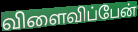
விளைவிப்பேன்